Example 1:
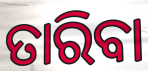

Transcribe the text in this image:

ତାରିବା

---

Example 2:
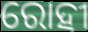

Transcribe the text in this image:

ରୋହୀ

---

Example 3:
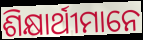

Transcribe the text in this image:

ଶିକ୍ଷାର୍ଥୀମାନେ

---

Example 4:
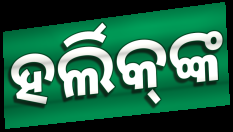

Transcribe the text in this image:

ହର୍ଲିକ୍‌ଙ୍କ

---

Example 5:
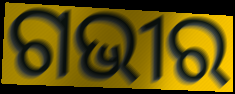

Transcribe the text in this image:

ଗଭୀର